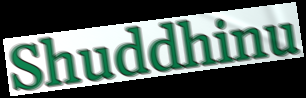
Shuddhinu